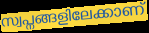
സ്വപ്നങ്ങളിലേക്കാണ്